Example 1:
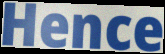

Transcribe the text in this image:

Hence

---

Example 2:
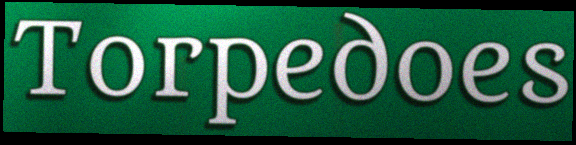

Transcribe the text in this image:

Torpedoes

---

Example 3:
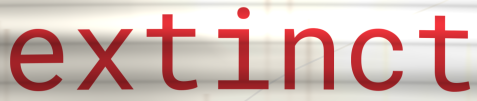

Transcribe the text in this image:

extinct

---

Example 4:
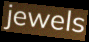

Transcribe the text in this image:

jewels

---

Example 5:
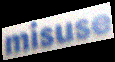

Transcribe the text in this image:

misuse